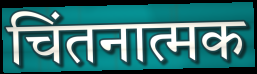
चिंतनात्मक